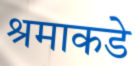
श्रमाकडे